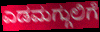
ಎಡಮಗ್ಗುಲಿಗೆ